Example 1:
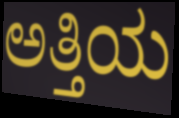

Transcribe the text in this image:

ಅತ್ತಿಯ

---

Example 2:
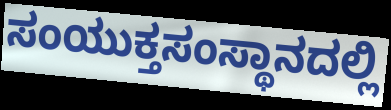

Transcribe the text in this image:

ಸಂಯುಕ್ತಸಂಸ್ಥಾನದಲ್ಲಿ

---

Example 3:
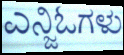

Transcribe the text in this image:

ಎನ್ಜಿಓಗಳು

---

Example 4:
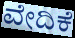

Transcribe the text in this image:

ವೇದಿಕೆ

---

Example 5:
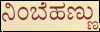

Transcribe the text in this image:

ನಿಂಬೆಹಣ್ಣು